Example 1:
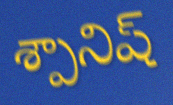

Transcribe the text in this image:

శ్పానిష్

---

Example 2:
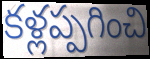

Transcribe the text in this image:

కళ్లప్పగించి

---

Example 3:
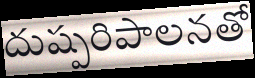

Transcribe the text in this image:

దుష్పరిపాలనతో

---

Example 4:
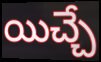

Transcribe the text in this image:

యిచ్చే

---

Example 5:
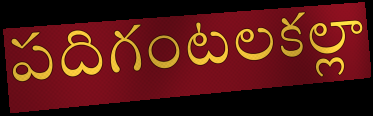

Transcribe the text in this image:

పదిగంటలకల్లా